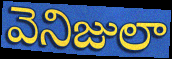
వెనిజులా